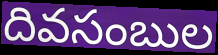
దివసంబుల